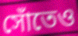
সোঁতেও